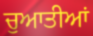
ਚੁਆਤੀਆਂ